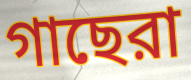
গাছেরা